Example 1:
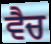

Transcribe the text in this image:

ਵੈਚ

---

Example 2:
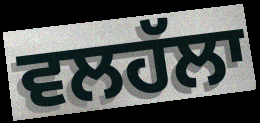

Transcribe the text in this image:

ਵਲਹੱਲਾ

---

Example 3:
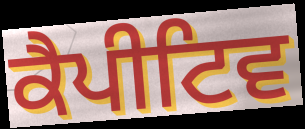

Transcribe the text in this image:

ਕੈਪੀਟਿਵ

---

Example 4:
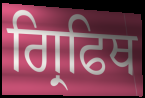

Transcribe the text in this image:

ਗ੍ਰਿਫਿਥ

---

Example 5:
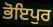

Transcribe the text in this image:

ਭੋਇਪੁਰ